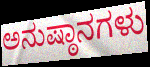
ಅನುಷ್ಠಾನಗಳು